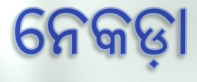
ନେକଡ଼ା